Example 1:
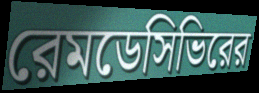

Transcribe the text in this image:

রেমডেসিভিরের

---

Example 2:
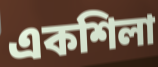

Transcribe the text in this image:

একশিলা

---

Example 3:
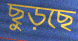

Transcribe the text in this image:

ছুড়ছে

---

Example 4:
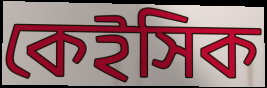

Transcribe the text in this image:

কেইসিক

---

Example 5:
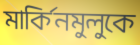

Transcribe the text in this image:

মার্কিনমুলুকে